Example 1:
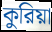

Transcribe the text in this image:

কুরিয়া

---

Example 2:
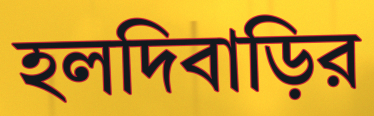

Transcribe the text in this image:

হলদিবাড়ির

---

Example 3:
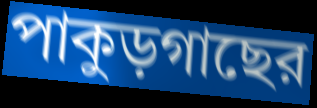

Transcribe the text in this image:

পাকুড়গাছের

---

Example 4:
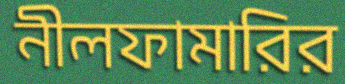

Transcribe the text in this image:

নীলফামারির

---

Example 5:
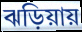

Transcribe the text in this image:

ঝড়িয়ায়